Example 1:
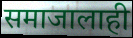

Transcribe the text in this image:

समाजालाही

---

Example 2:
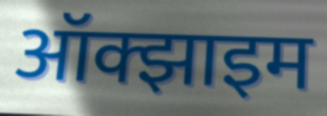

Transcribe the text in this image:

ऑक्झाइम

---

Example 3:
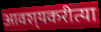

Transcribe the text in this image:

आवश्यकरीत्या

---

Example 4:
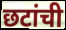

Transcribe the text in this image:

छटांची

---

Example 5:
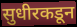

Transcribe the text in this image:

सुधीरकडून